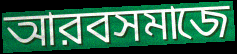
আরবসমাজে